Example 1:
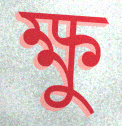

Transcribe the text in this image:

ক্ষু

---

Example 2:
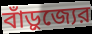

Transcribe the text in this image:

বাঁড়ুজ্যের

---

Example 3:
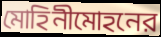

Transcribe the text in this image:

মোহিনীমোহনের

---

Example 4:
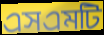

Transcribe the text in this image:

এসএমটি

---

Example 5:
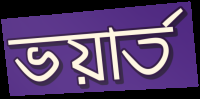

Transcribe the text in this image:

ভয়ার্ত